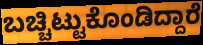
ಬಚ್ಚಿಟ್ಟುಕೊಂಡಿದ್ದಾರೆ